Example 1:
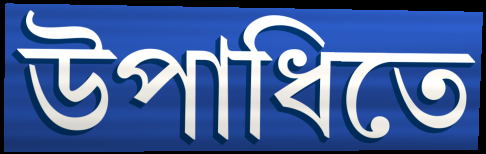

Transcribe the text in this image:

উপাধিতে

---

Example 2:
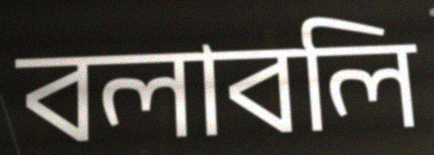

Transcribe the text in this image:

বলাবলি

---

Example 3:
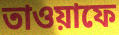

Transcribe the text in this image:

তাওয়াফে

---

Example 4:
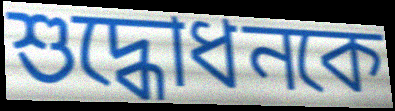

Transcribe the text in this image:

শুদ্ধোধনকে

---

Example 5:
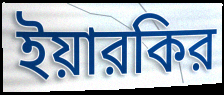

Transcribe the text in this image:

ইয়ারকির